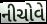
નીચોવે